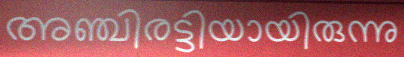
അഞ്ചിരട്ടിയായിരുന്നു